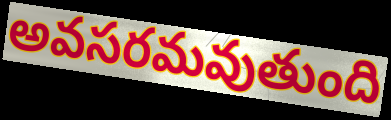
అవసరమవుతుంది